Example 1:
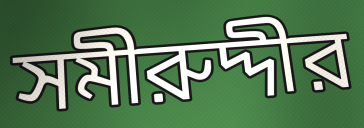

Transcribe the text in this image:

সমীরুদ্দীর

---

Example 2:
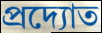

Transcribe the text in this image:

প্রদ্যোত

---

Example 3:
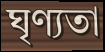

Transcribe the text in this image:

ঘৃণ্যতা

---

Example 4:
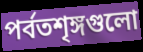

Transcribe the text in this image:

পর্বতশৃঙ্গগুলো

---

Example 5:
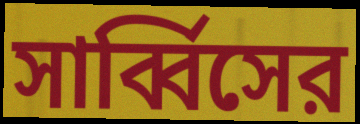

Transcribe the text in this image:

সার্ব্বিসের